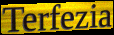
Terfezia